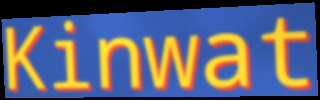
Kinwat